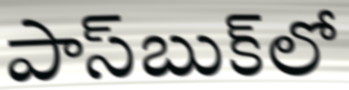
పాస్‌బుక్‌లో